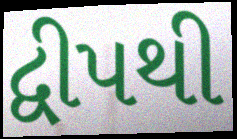
દ્વીપથી